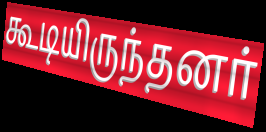
கூடியிருந்தனர்